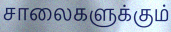
சாலைகளுக்கும்